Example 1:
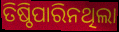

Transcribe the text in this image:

ତିଷ୍ଠିପାରିନଥିଲା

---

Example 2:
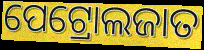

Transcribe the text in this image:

ପେଟ୍ରୋଲଜାତ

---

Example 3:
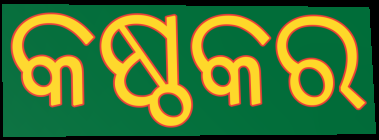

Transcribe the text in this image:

କଷ୍ଠକର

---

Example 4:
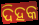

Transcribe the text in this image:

ଦିହକ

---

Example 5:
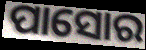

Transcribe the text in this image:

ପାସୋର